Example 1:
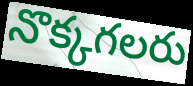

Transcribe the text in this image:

నొక్కగలరు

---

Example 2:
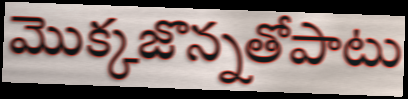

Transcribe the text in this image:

మొక్కజొన్నతోపాటు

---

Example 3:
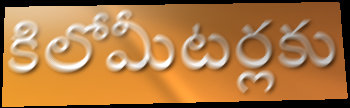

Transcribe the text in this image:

కిలోమీటర్లకు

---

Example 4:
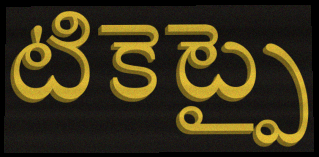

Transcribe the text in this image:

టికెట్పై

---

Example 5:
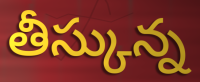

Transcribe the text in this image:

తీస్కున్న